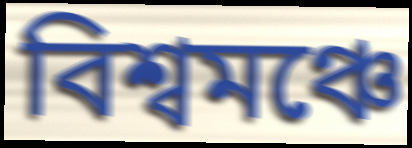
বিশ্বমঞ্চে